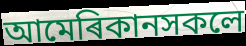
আমেৰিকানসকলে